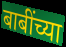
बाबींच्या